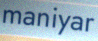
maniyar